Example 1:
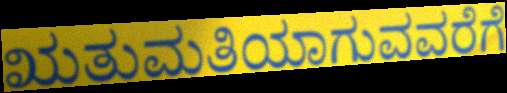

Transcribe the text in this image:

ಋತುಮತಿಯಾಗುವವರೆಗೆ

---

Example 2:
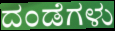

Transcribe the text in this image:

ದಂಡೆಗಳು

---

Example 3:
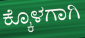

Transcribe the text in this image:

ಕ್ಕೊಳಗಾಗಿ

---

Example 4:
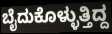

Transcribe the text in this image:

ಬೈದುಕೊಳ್ಳುತ್ತಿದ್ದ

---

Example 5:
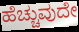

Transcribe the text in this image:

ಹೆಚ್ಚುವುದೇ